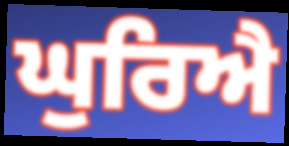
ਘੁਰਿਐ